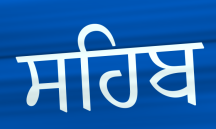
ਸਹਿਬ